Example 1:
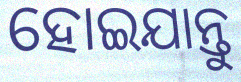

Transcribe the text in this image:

ହୋଇଯାନ୍ତୁ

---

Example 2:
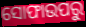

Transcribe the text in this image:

ସୋଫାଉପରୁ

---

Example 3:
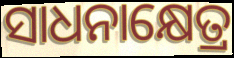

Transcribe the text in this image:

ସାଧନାକ୍ଷେତ୍ର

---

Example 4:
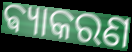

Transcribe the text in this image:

ଵ୍ଯାକରଣ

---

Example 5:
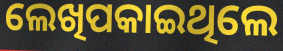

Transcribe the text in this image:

ଲେଖିପକାଇଥିଲେ